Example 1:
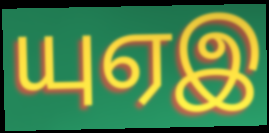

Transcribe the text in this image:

யுஏஇ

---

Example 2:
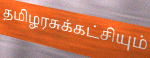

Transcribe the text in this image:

தமிழரசுக்கட்சியும்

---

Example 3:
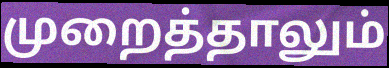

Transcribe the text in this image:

முறைத்தாலும்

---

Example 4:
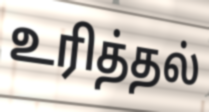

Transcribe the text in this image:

உரித்தல்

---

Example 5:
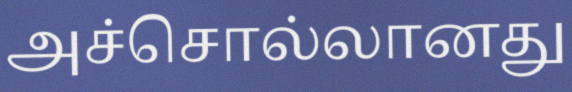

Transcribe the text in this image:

அச்சொல்லானது